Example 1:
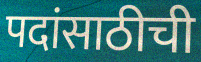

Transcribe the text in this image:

पदांसाठीची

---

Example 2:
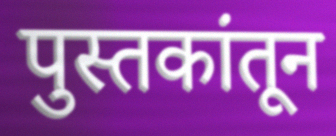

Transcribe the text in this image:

पुस्तकांतून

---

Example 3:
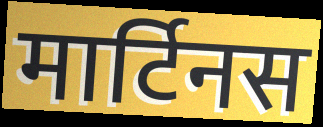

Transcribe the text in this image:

मार्टिनस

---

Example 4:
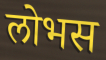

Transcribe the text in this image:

लोभस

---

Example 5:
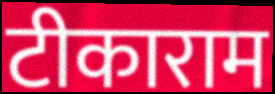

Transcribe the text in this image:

टीकाराम